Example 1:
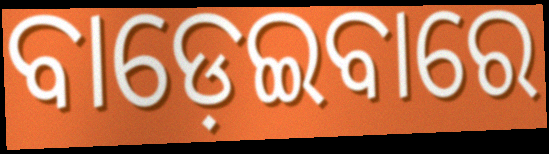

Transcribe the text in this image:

ବାଡ଼େଇବାରେ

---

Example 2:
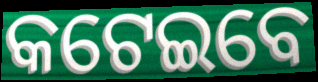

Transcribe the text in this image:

କଟେଇବେ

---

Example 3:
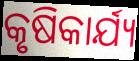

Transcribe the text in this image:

କୃଷିକାର୍ଯ୍ୟ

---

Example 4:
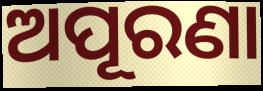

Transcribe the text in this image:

ଅପୂରଣା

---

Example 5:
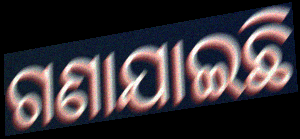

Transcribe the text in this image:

ଗଣାଯାଇଛି